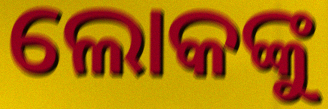
ଲୋକଙ୍କୁ